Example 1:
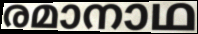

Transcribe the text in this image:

രമാനാഥ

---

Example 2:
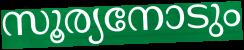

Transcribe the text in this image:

സൂര്യനോടും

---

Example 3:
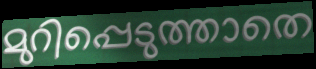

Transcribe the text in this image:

മുറിപ്പെടുത്താതെ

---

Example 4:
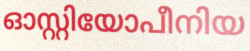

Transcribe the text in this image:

ഓസ്റ്റിയോപീനിയ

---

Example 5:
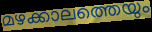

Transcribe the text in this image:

മഴക്കാലത്തെയും